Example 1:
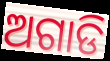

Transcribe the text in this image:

ଅଗାଡି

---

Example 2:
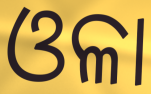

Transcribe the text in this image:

ଓଳା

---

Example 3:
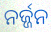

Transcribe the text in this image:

ନର୍ଜ୍ଜନ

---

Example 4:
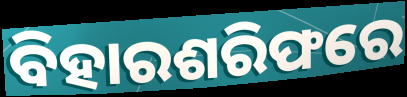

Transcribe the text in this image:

ବିହାରଶରିଫରେ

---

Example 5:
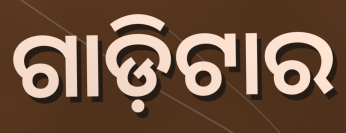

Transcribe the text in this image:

ଗାଡ଼ିଟାର